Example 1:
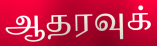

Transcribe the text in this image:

ஆதரவுக்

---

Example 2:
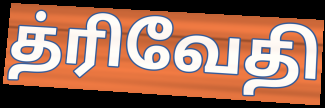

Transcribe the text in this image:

த்ரிவேதி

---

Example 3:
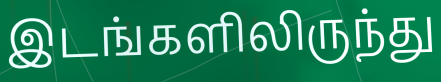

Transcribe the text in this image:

இடங்களிலிருந்து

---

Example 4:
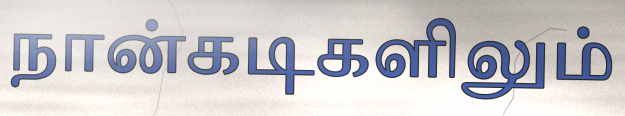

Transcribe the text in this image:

நான்கடிகளிலும்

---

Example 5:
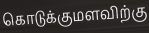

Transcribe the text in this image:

கொடுக்குமளவிற்கு